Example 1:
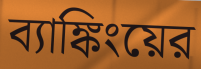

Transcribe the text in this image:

ব্যাঙ্কিংয়ের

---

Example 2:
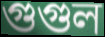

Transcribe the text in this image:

গুগুল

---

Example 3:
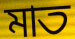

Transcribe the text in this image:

মাত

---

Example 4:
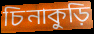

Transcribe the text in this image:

চিনাকুড়ি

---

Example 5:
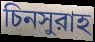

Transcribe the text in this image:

চিনসুরাহ